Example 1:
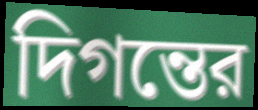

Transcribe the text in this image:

দিগন্তের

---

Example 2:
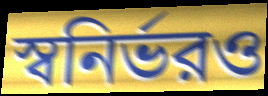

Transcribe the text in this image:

স্বনির্ভরও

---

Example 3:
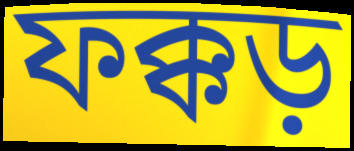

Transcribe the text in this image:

ফক্কড়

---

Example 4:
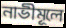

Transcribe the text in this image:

নাভীমূলে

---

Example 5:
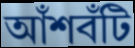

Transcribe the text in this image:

আঁশবঁটি